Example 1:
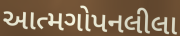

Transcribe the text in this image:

આત્મગોપનલીલા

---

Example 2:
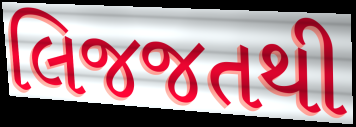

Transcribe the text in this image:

લિજજતથી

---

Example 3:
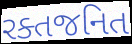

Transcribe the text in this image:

રક્તજનિત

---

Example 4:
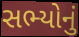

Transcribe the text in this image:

સભ્યોનું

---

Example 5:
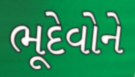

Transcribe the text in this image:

ભૂદેવોને